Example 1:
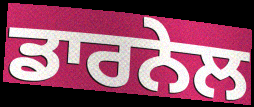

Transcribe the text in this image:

ਡਾਰਨੇਲ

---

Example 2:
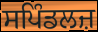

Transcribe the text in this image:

ਸਪਿੰਡਲਜ਼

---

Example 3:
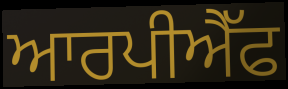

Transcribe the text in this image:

ਆਰਪੀਐੱਫ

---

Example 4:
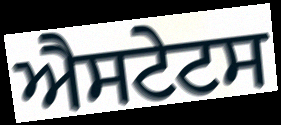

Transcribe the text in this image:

ਐਸਟੇਟਸ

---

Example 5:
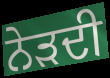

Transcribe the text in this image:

ਨੇੜਦੀ